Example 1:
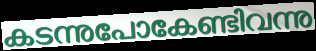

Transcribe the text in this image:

കടന്നുപോകേണ്ടിവന്നു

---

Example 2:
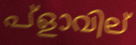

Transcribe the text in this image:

പ്ളാവില്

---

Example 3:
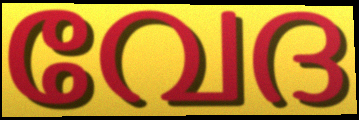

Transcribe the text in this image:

വേദ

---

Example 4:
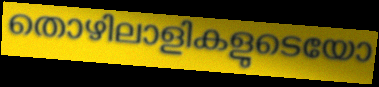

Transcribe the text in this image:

തൊഴിലാളികളുടെയോ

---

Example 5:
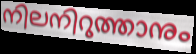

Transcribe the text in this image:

നിലനിറുത്താനും